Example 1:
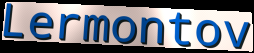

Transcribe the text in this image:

Lermontov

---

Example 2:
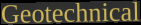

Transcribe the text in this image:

Geotechnical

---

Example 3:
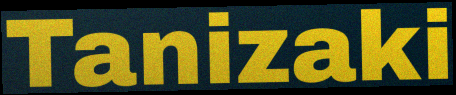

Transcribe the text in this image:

Tanizaki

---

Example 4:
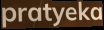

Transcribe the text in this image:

pratyeka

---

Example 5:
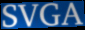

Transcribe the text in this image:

SVGA